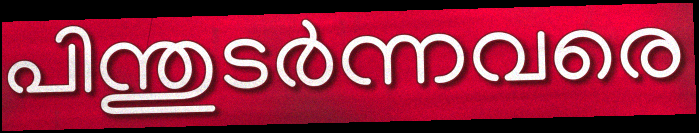
പിന്തുടർന്നവരെ